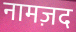
नामज़द